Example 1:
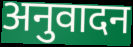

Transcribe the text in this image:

अनुवादन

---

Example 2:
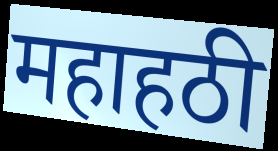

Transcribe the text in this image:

महाहठी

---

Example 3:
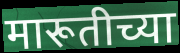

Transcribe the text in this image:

मारूतीच्या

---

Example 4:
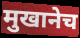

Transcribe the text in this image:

मुखानेच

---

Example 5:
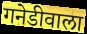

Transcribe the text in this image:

गनेडीवाला